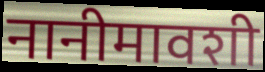
नानीमावशी